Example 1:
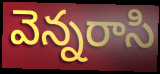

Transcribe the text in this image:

వెన్నరాసి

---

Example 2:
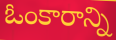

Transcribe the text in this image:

ఓంకారాన్ని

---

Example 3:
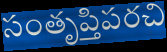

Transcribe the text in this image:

సంతృప్తిపరచి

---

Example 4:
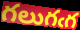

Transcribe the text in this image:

గలుగఁగ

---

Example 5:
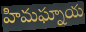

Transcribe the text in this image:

హిమఘ్నాయ